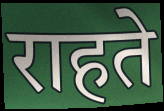
राहते